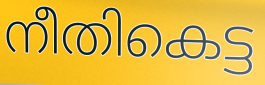
നീതികെട്ട